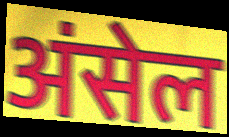
अंसेल